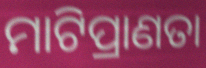
ମାଟିପ୍ରାଣତା